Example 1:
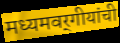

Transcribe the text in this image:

मध्यमवर्गीयांची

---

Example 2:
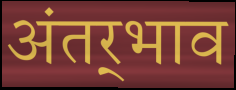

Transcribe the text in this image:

अंतर्भाव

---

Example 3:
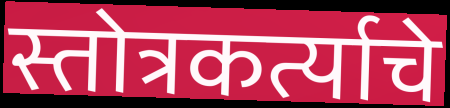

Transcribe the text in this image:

स्तोत्रकर्त्याचे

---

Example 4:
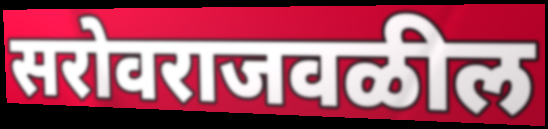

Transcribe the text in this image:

सरोवराजवळील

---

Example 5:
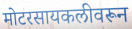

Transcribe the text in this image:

मोटरसायकलीवरून